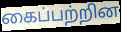
கைப்பற்றின